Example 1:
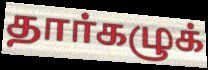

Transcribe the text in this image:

தார்கழுக்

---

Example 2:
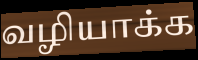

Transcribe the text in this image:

வழியாக்க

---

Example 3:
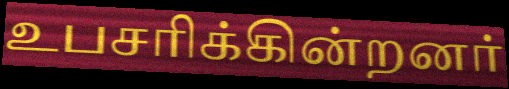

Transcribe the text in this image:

உபசரிக்கின்றனர்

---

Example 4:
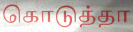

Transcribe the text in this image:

கொடுத்தா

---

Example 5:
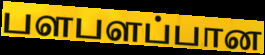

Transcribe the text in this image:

பளபளப்பான